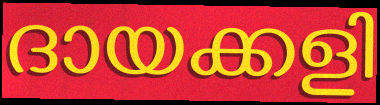
ദായക്കളി